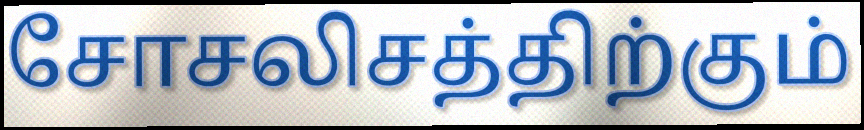
சோசலிசத்திற்கும்